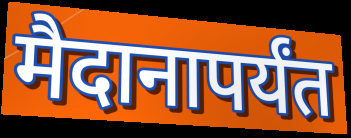
मैदानापर्यंत